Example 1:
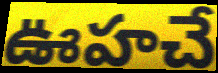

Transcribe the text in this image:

ఊహచే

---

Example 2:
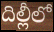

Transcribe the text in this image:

దిల్లీలో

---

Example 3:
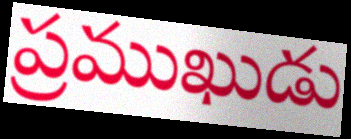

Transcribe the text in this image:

ప్రముఖుడు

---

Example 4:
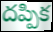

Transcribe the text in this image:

దప్పిక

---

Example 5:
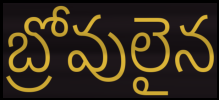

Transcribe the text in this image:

బ్రోవులైన